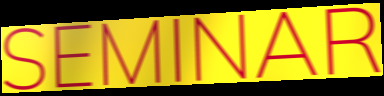
SEMINAR